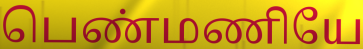
பெண்மணியே